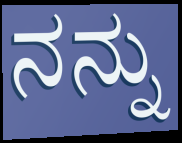
ನನ್ನು